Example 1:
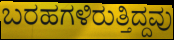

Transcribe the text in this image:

ಬರಹಗಳಿರುತ್ತಿದ್ದವು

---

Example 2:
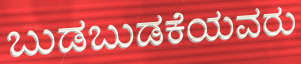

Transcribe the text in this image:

ಬುಡಬುಡಕೆಯವರು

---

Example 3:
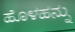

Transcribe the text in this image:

ಹೊಳಹನ್ನು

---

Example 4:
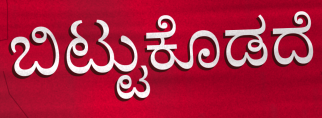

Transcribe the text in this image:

ಬಿಟ್ಟುಕೊಡದೆ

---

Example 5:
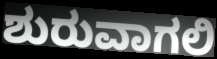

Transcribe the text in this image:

ಶುರುವಾಗಲಿ